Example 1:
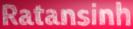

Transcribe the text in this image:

Ratansinh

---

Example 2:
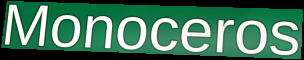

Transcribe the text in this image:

Monoceros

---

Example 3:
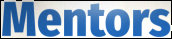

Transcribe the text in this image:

Mentors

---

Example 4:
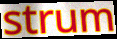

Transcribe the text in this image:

strum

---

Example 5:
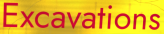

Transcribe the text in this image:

Excavations